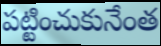
పట్టించుకునేంత